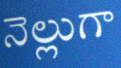
నెల్లుగా